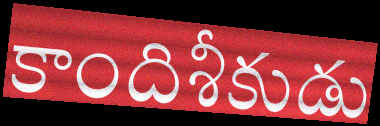
కాందిశీకుడు